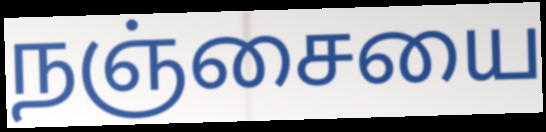
நஞ்சையை